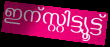
ഇന്സ്റ്റിട്ട്യൂട്ട്